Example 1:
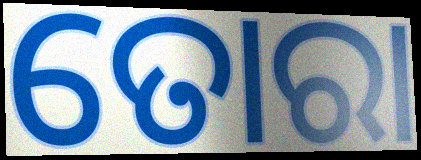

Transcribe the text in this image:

ତୋରା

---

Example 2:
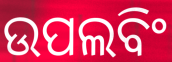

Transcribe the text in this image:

ଉପଲବିଂ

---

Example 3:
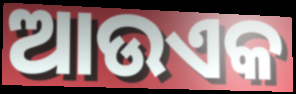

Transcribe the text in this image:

ଆଉଏକ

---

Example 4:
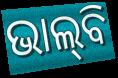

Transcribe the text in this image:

ଭାଲ୍‌ବି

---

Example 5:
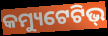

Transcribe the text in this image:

କମ୍ୟୁଟେଟିଭ୍